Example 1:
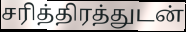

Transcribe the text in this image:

சரித்திரத்துடன்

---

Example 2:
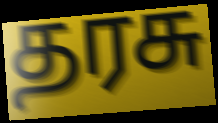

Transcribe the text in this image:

தரசு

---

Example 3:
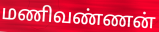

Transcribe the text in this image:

மணிவண்ணன்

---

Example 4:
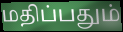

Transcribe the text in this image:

மதிப்பதும்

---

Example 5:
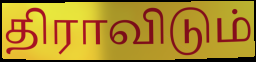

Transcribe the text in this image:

திராவிடும்